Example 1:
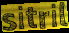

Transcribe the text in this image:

sitril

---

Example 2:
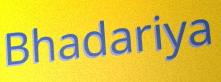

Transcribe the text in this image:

Bhadariya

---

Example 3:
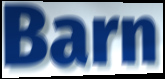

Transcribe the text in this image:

Barn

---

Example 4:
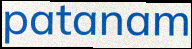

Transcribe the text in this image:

patanam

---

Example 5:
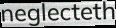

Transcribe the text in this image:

neglecteth